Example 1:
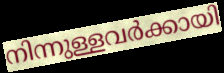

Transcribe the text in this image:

നിന്നുള്ളവർക്കായി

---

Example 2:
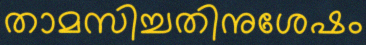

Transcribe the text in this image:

താമസിച്ചതിനുശേഷം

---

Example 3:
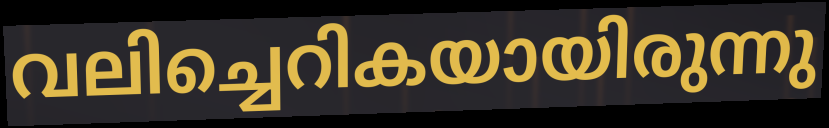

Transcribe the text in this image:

വലിച്ചെറികയായിരുന്നു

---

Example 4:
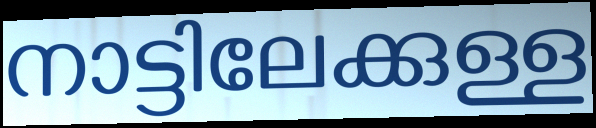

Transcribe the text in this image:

നാട്ടിലേക്കുള്ള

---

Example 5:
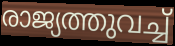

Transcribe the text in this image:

രാജ്യത്തുവച്ച്